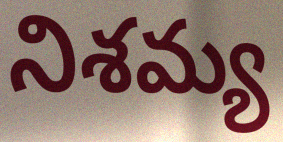
నిశమ్య